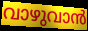
വാഴുവാൻ